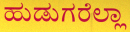
ಹುಡುಗರೆಲ್ಲಾ